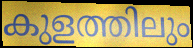
കുളത്തിലും